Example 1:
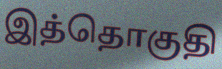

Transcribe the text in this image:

இத்தொகுதி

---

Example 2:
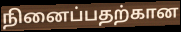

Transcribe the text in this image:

நினைப்பதற்கான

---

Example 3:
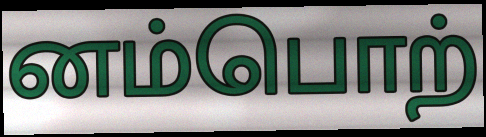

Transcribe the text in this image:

னம்பொற்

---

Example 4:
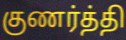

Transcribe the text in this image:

குணர்த்தி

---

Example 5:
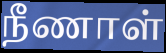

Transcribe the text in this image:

நீணாள்